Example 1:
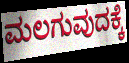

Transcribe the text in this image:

ಮಲಗುವುದಕ್ಕೆ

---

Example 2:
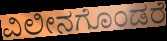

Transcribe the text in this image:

ವಿಲೀನಗೊಂಡರೆ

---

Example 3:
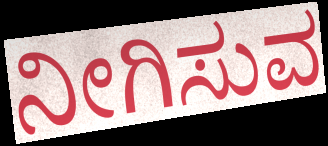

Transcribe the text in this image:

ನೀಗಿಸುವ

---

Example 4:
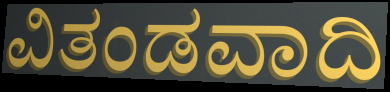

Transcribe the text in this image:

ವಿತಂಡವಾದಿ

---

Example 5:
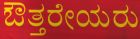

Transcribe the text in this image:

ಔತ್ತರೇಯರು